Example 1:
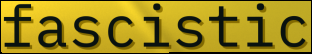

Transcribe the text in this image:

fascistic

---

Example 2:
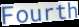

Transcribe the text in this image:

Fourth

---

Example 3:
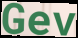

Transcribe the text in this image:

Gev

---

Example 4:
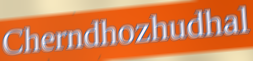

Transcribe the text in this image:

Cherndhozhudhal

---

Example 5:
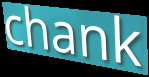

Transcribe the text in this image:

chank